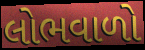
લોભવાળો